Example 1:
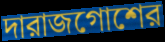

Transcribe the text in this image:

দারাজগোশের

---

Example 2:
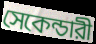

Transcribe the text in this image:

সেকেন্ডারী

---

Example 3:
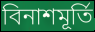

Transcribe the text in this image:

বিনাশমূর্তি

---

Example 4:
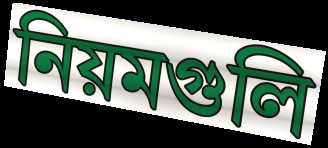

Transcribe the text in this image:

নিয়মগুলি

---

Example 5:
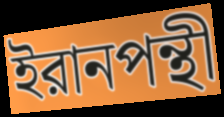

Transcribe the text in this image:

ইরানপন্থী